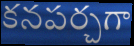
కనపర్చగా